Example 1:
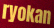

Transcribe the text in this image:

ryokan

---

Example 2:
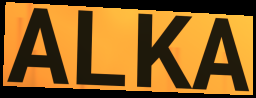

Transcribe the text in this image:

ALKA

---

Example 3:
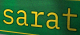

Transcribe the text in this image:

sarat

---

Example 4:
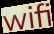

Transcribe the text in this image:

wifi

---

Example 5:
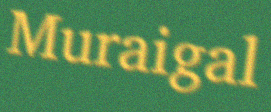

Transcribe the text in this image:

Muraigal